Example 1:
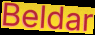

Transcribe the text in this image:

Beldar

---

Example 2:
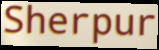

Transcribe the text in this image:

Sherpur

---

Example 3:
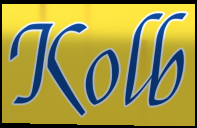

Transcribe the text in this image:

Kolb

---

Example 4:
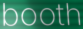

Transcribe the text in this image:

booth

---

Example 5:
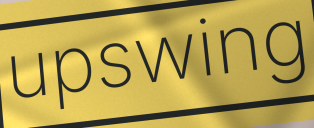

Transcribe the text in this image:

upswing